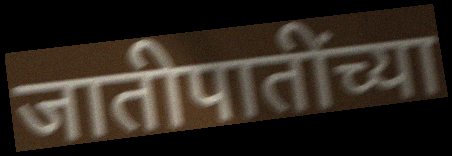
जातीपातींच्या